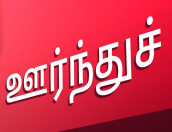
ஊர்ந்துச்